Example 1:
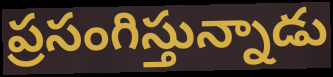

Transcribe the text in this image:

ప్రసంగిస్తున్నాడు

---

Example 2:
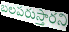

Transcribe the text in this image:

బలపరుస్తారని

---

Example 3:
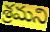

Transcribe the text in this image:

శ్రమని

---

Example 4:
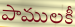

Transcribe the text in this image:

పాములకీ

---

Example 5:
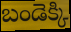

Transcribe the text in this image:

బండెక్కి